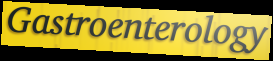
Gastroenterology